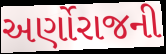
અર્ણોરાજની